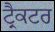
ਟ੍ਰੈਕਟਰ